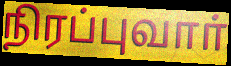
நிரப்புவார்